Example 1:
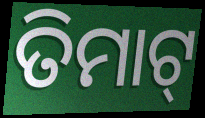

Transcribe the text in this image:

ତିମାଟ୍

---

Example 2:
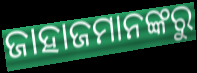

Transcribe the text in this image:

ଜାହାଜମାନଙ୍କରୁ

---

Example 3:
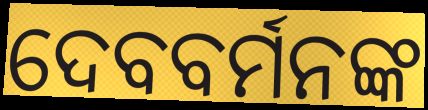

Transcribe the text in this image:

ଦେବବର୍ମନଙ୍କ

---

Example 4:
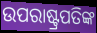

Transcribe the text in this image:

ଉପରାଷ୍ଟ୍ରପତିଙ୍କ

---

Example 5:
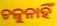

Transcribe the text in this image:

ଚଳୁନାହିଁ